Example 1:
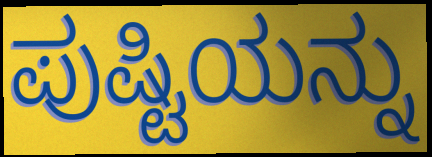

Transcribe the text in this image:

ಪುಷ್ಟಿಯನ್ನು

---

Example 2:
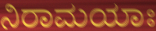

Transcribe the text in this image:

ನಿರಾಮಯಾಃ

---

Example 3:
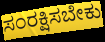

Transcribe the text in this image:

ಸಂರಕ್ಷಿಸಬೇಕು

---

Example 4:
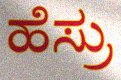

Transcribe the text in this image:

ಹೆಸ್ರು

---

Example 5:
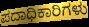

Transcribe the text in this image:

ಪದಾಧಿಕಾರಿಗಳು